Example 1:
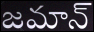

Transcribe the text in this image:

జమాన్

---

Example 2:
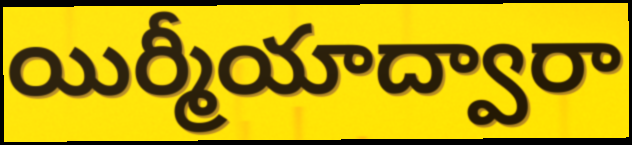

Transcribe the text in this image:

యిర్మీయాద్వారా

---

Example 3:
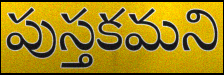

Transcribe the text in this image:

పుస్తకమని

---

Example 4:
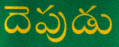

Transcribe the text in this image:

దెపుడు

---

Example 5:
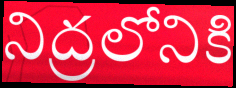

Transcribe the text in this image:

నిద్రలోనికి